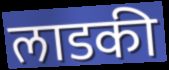
लाडकी